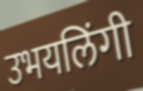
उभयलिंगी